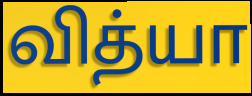
வித்யா